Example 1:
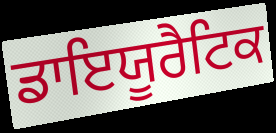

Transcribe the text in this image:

ਡਾਇਯੂਰੈਟਿਕ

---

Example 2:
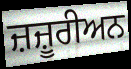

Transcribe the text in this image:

ਜ਼ਜ਼ੂਰੀਅਨ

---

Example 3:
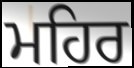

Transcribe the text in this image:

ਮਹਿਰ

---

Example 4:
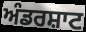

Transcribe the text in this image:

ਅੰਡਰਸ਼ਾਟ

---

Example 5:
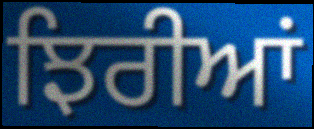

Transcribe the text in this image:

ਝਿਰੀਆਂ